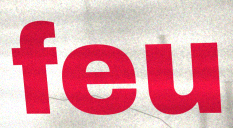
feu